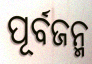
ପୂର୍ବଜନ୍ମ